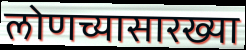
लोणच्यासारख्या